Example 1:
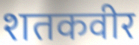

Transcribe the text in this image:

शतकवीर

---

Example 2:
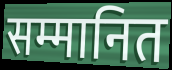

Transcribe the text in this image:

सम्मानित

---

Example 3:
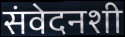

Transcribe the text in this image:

संवेदनशी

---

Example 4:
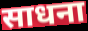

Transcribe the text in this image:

साधना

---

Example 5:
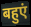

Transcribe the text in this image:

बहुएं